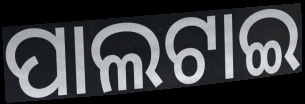
ପାଲଟାଇ